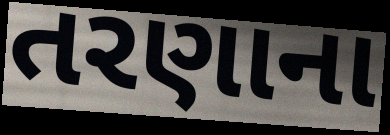
તરણાના